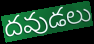
దవుడలు